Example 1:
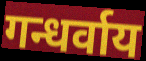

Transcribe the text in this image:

गन्धर्वाय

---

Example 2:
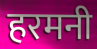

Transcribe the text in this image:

हरमनी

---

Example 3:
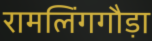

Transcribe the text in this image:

रामलिंगगौड़ा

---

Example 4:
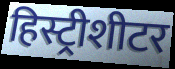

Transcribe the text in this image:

हिस्ट्रीशीटर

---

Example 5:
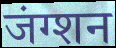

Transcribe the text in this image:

जंग्शन